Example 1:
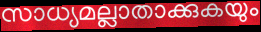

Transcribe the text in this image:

സാധ്യമല്ലാതാക്കുകയും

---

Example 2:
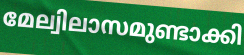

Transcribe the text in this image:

മേല്വിലാസമുണ്ടാക്കി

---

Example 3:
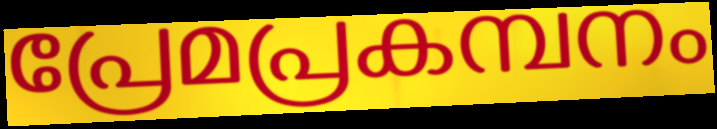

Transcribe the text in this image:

പ്രേമപ്രകമ്പനം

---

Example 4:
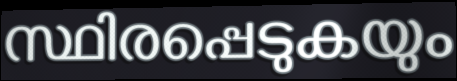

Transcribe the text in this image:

സ്ഥിരപ്പെടുകയും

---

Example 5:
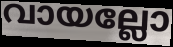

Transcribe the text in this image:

വായല്ലോ